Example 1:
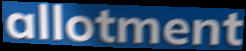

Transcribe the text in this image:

allotment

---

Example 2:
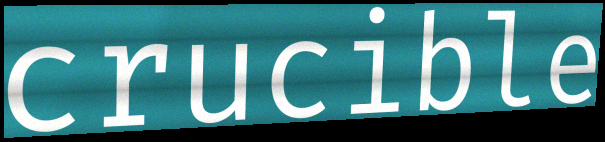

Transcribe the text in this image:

crucible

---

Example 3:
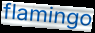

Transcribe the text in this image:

flamingo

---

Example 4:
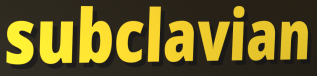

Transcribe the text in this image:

subclavian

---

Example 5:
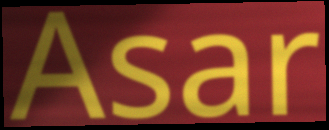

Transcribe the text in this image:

Asar